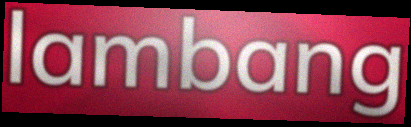
lambang